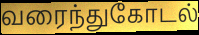
வரைந்துகோடல்